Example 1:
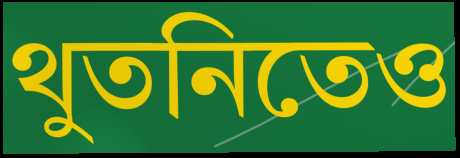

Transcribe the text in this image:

থুতনিতেও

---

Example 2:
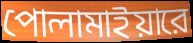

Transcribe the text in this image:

পোলামাইয়ারে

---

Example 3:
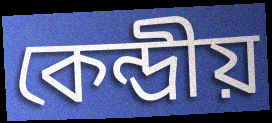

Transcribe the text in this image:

কেন্দ্রীয়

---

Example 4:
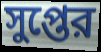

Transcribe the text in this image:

সুপ্তের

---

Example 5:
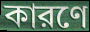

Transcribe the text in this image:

কারণে